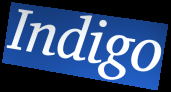
Indigo